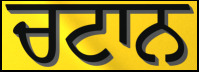
ਚਟਾਨ